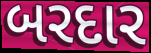
બરદાર